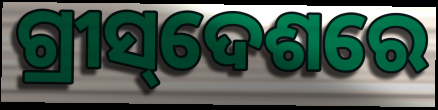
ଗ୍ରୀସ୍‌ଦେଶରେ